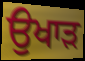
ਉਖਾੜ